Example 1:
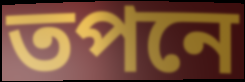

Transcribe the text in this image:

তপনে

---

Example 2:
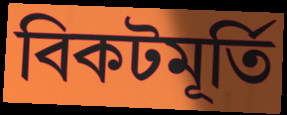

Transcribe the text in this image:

বিকটমূর্তি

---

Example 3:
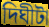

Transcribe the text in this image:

দিঘীটা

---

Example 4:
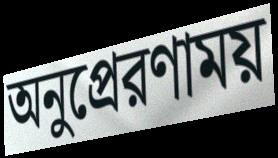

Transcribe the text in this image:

অনুপ্রেরণাময়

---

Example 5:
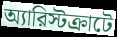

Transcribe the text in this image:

অ্যারিস্টক্রাটে